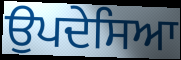
ਉਪਦੇਸਿਆ